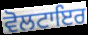
ਵੋਲਟਾਇਰ